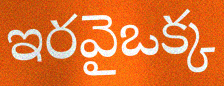
ఇరవైఒక్క